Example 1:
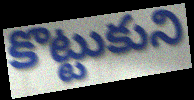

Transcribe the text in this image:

కొట్టుకుని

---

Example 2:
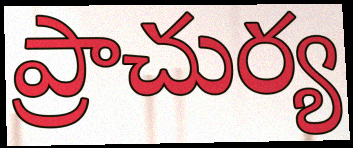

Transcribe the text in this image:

ప్రాచుర్య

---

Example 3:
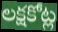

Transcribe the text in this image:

లక్షకోట్ల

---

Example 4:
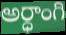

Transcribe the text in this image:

అర్ధాంగి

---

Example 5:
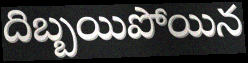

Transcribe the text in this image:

దిబ్బయిపోయిన